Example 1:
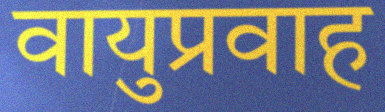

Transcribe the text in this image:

वायुप्रवाह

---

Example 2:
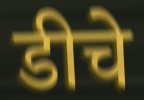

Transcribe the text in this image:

डीचे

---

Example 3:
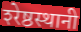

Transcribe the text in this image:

श्रेष्ठस्थानी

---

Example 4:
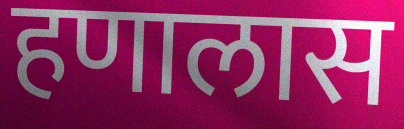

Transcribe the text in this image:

हणालास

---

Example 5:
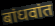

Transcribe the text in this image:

बांधवांत